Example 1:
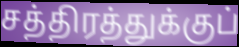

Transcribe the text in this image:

சத்திரத்துக்குப்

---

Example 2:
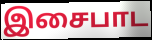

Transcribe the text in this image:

இசைபாட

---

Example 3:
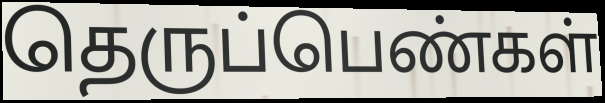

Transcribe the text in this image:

தெருப்பெண்கள்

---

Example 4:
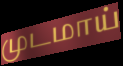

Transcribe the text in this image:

முடமாய்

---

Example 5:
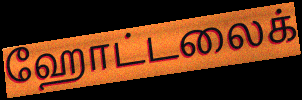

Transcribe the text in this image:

ஹோட்டலைக்